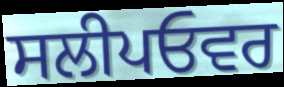
ਸਲੀਪਓਵਰ